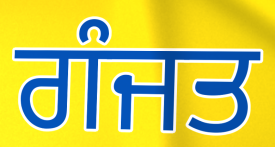
ਗੰਜਤ